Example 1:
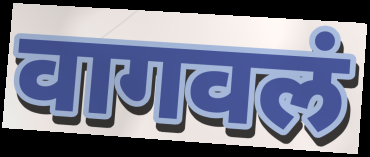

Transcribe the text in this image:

वागवलं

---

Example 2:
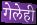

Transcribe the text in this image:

गेलेही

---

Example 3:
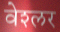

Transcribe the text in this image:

वेश्लर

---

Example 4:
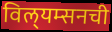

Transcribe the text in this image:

विल्यम्सनची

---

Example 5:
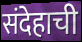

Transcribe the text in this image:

संदेहाची